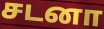
சடனா